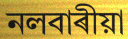
নলবাৰীয়া